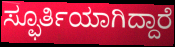
ಸ್ಫೂರ್ತಿಯಾಗಿದ್ದಾರೆ